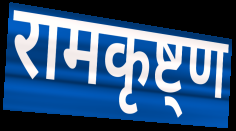
रामकृष्ट्ण